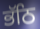
ਭੱਠਿ